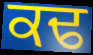
ਕਢ